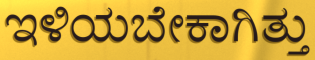
ಇಳಿಯಬೇಕಾಗಿತ್ತು